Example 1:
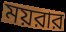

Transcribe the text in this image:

ময়রার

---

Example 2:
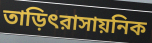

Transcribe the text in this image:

তাড়িৎরাসায়নিক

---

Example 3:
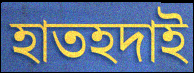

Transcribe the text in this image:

হাতহদাই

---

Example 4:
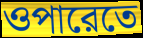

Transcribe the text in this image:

ওপারেতে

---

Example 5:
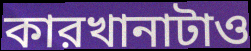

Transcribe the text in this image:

কারখানাটাও